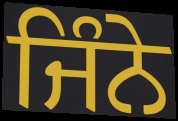
ਜਿੰਨੇ